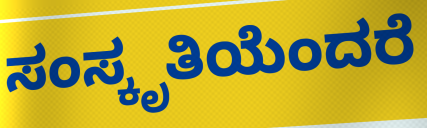
ಸಂಸ್ಕೃತಿಯೆಂದರೆ